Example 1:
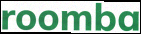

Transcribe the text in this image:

roomba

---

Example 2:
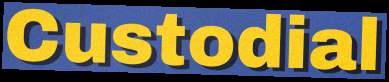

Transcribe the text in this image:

Custodial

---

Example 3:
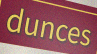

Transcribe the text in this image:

dunces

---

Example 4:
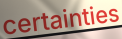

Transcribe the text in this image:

certainties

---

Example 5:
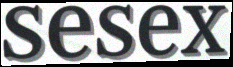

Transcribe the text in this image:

sesex